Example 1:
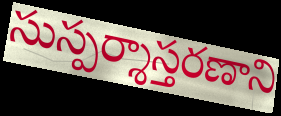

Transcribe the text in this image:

సుస్పర్శాస్తరణాని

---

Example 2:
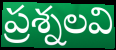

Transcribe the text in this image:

ప్రశ్నలవి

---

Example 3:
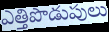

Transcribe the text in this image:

ఎత్తిపొడుపులు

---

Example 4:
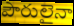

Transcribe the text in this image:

పౌరులైనా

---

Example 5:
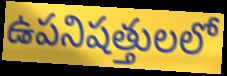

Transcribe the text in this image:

ఉపనిషత్తులలో